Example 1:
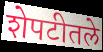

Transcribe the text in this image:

शेपटीतले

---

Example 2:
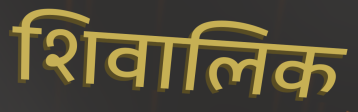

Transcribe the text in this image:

शिवालिक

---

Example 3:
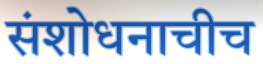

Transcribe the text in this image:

संशोधनाचीच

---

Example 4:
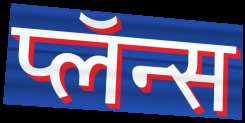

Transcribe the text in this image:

प्लॅन्स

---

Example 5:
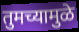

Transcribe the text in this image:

तुमच्यामुळे